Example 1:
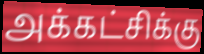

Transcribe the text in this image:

அக்கட்சிக்கு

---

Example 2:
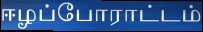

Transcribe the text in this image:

ஈழப்போராட்டம்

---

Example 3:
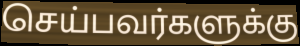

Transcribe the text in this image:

செய்பவர்களுக்கு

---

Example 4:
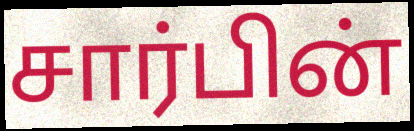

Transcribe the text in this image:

சார்பின்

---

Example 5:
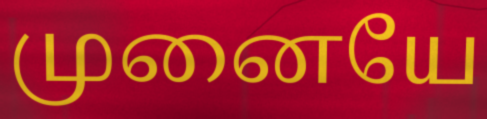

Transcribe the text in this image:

முனையே